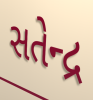
સતેન્દ્ર